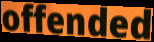
offended